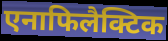
एनाफिलैक्टिक